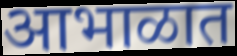
आभाळात